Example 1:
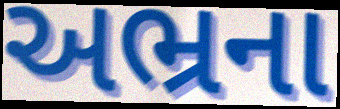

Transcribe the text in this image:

અભ્રના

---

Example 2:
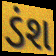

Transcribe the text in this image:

ડંશ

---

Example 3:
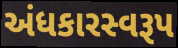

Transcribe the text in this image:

અંધકારસ્વરૂપ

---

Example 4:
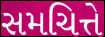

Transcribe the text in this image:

સમચિત્તે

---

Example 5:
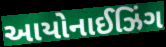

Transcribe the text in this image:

આયોનાઈઝિંગ